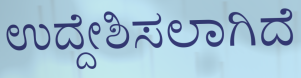
ಉದ್ದೇಶಿಸಲಾಗಿದೆ